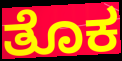
ತೊಕ